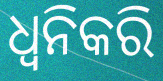
ଧ୍ୱନିକରି